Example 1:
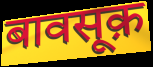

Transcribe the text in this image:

बावसूक़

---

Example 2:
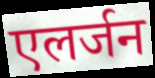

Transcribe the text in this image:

एलर्जन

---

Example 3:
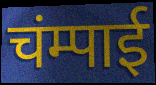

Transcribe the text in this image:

चंम्पाई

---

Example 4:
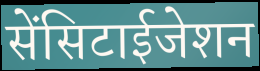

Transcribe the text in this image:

सेंसिटाईजेशन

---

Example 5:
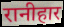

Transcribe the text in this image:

रानीहार